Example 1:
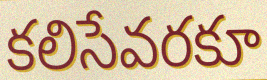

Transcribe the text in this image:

కలిసేవరకూ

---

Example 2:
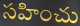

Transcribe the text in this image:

సహించు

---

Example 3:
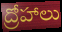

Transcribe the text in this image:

ద్రోహాలు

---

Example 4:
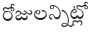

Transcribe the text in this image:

రోజులన్నిట్లో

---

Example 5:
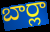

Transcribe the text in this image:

బార్లా